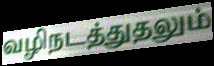
வழிநடத்துதலும்